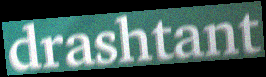
drashtant